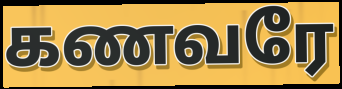
கணவரே